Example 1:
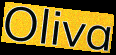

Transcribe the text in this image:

Oliva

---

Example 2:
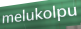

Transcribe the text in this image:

melukolpu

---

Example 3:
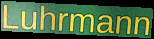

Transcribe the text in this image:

Luhrmann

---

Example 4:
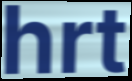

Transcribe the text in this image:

hrt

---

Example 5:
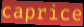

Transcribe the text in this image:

caprice